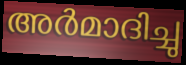
അർമാദിച്ചു